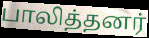
பாலித்தனர்